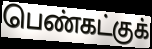
பெண்கட்குக்